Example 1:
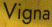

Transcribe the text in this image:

Vigna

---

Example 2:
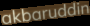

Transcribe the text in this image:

akbaruddin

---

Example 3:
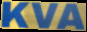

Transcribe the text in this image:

KVA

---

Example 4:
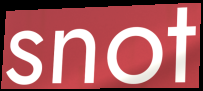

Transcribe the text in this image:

snot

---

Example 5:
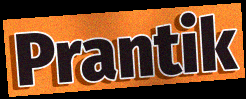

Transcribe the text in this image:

Prantik